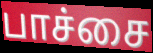
பாச்சை